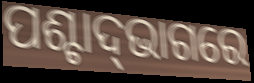
ପଶ୍ଚାଦ୍‌ଭାଗରେ